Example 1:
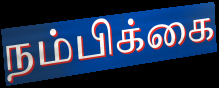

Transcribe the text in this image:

நம்பிக்கை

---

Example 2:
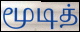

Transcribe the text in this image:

மூடித்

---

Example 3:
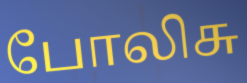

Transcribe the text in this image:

போலிசு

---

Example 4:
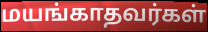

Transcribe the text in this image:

மயங்காதவர்கள்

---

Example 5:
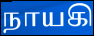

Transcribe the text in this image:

நாயகி